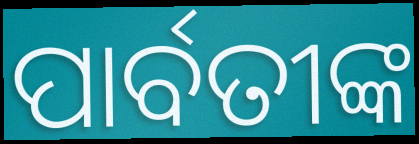
ପାର୍ବତୀଙ୍କ